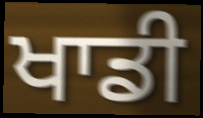
ਖਾਡੀ